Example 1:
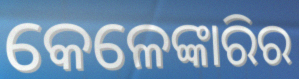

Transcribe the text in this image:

କେଳେଙ୍କାରିର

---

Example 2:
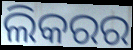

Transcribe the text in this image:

ଲିକରର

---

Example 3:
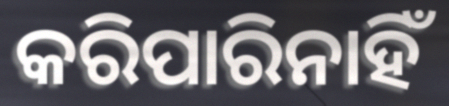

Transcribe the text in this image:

କରିପାରିନାହିଁ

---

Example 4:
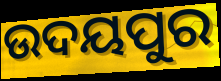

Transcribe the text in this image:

ଉଦୟପୁର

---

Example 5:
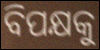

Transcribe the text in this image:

ବିପକ୍ଷକୁ